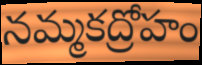
నమ్మకద్రోహం